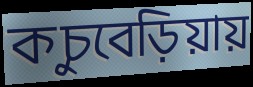
কচুবেড়িয়ায়